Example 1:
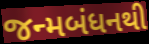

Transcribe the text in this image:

જન્મબંધનથી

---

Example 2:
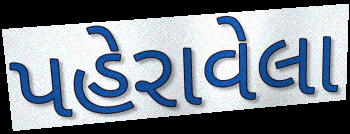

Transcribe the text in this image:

પહેરાવેલા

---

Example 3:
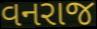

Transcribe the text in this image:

વનરાજ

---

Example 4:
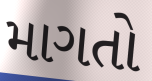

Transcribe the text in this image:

માગતો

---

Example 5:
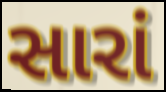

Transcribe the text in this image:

સારાં